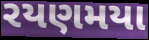
રયણમયા